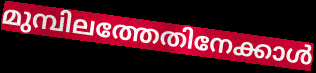
മുമ്പിലത്തേതിനേക്കാൾ